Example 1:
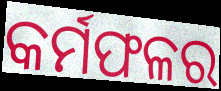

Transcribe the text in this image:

କର୍ମଫଳର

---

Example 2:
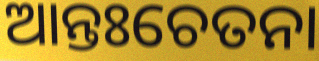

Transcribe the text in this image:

ଆନ୍ତଃଚେତନା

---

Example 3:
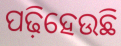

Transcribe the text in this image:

ପଢ଼ିହେଉଛି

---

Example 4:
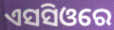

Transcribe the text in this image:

ଏସସିଓରେ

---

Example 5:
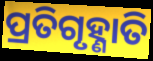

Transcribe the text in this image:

ପ୍ରତିଗୃହ୍ଣାତି